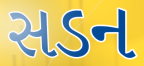
સડન